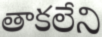
తాకలేని